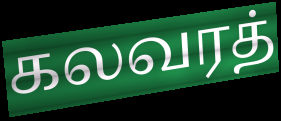
கலவரத்